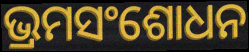
ଭ୍ରମସଂଶୋଧନ